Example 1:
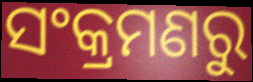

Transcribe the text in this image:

ସଂକ୍ରମଣରୁ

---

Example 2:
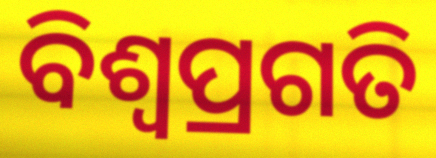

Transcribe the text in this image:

ବିଶ୍ବପ୍ରଗତି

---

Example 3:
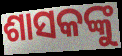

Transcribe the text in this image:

ଶାସକଙ୍କୁ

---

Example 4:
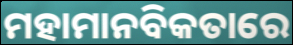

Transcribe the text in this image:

ମହାମାନବିକତାରେ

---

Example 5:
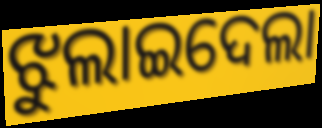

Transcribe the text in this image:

ଝୁଲାଇଦେଲା